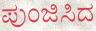
ಪುಂಜಿಸಿದ